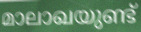
മാലാഖയുണ്ട്